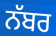
ਨੱਬਰ